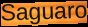
Saguaro